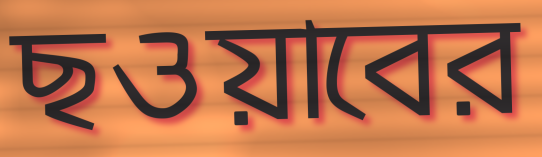
ছওয়াবের